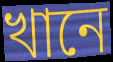
খানে